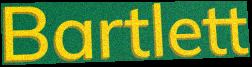
Bartlett